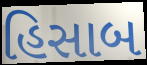
હિસાબ